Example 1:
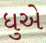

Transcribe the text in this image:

ધુએ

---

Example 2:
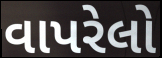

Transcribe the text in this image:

વાપરેલો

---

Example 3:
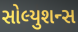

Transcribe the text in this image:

સોલ્યુશન્સ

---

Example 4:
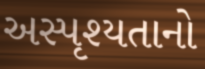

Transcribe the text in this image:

અસ્પૃશ્યતાનો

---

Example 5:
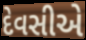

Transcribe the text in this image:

દેવસીએ